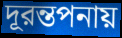
দূরন্তপনায়